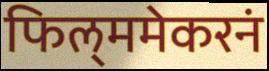
फिल्ममेकरनं